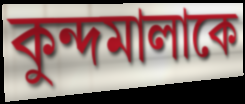
কুন্দমালাকে